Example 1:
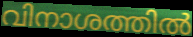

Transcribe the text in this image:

വിനാശത്തിൽ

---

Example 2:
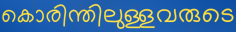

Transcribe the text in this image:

കൊരിന്തിലുള്ളവരുടെ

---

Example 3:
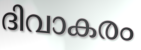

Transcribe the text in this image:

ദിവാകരം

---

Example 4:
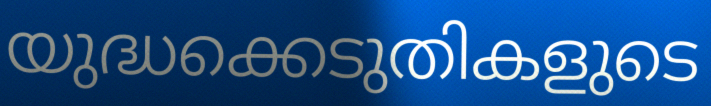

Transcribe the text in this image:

യുദ്ധക്കെടുതികളുടെ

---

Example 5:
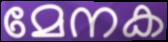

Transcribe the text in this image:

മേനക